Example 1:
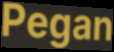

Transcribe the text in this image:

Pegan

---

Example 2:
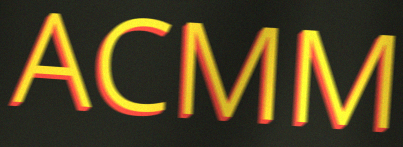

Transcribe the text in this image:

ACMM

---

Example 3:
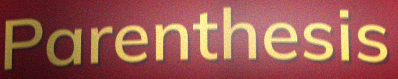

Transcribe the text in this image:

Parenthesis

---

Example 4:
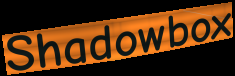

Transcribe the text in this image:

Shadowbox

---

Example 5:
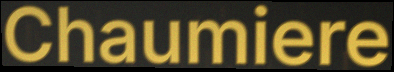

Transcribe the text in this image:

Chaumiere